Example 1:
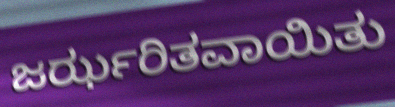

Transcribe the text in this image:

ಜರ್ಝರಿತವಾಯಿತು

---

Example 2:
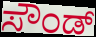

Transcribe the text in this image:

ಸೌಂಡ್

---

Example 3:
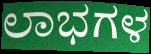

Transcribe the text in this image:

ಲಾಭಗಳ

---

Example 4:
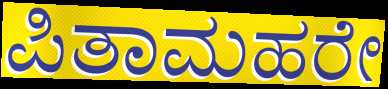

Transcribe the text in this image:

ಪಿತಾಮಹರೇ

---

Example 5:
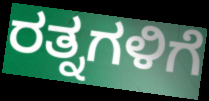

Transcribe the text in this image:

ರತ್ನಗಳಿಗೆ